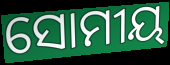
ସୋମୀୟ